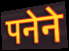
पनेने